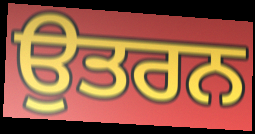
ਉਤਰਨ